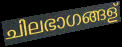
ചിലഭാഗങ്ങള്